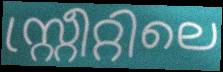
സ്റ്റ്രീറ്റിലെ